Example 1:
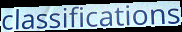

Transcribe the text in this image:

classifications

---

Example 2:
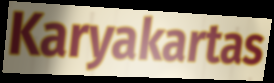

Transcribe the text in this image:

Karyakartas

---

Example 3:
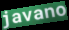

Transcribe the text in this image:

javano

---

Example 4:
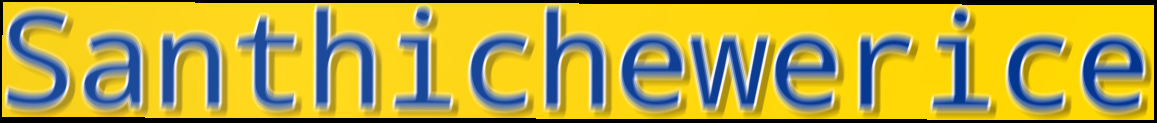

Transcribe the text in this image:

Santhichewerice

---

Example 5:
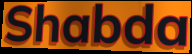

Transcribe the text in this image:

Shabda